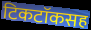
टिकटॉकसह